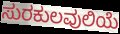
ಸುರಕುಲವುಲಿಯೆ